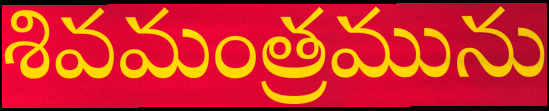
శివమంత్రమును